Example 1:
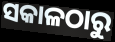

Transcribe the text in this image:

ସକାଳଠାରୁ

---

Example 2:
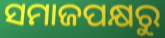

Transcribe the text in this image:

ସମାଜପକ୍ଷରୁ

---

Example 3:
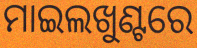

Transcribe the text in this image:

ମାଇଲଖୁଣ୍ଟରେ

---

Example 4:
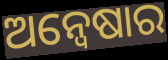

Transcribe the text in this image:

ଅନ୍ବେଷାର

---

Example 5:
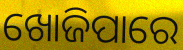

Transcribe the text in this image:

ଖୋଜିପାରେ